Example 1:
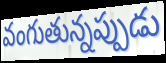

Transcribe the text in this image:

వంగుతున్నప్పుడు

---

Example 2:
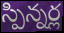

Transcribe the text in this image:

స్పిన్నర్ల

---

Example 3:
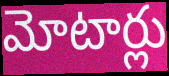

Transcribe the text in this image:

మోటార్లు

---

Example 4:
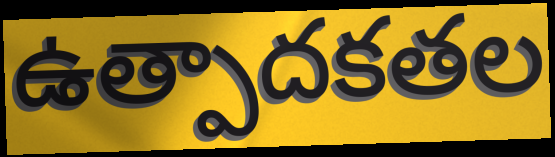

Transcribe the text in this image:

ఉత్పాదకతల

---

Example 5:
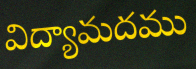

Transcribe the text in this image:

విద్యామదము